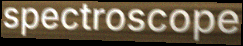
spectroscope